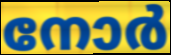
നോർ